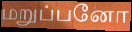
மறுப்பனோ